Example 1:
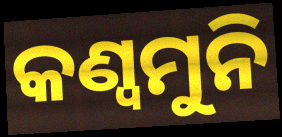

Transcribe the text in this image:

କଣ୍ୱମୁନି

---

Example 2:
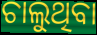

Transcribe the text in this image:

ଚାଲୁଥିବା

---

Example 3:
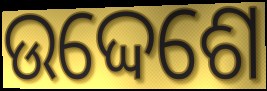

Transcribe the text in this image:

ଉଦ୍ଦେଶେ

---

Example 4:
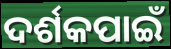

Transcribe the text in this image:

ଦର୍ଶକପାଇଁ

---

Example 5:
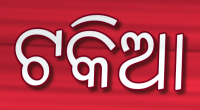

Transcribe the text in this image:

ଟକିଆ